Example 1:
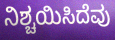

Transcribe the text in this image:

ನಿಶ್ಚಯಿಸಿದೆವು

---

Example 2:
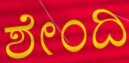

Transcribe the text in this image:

ಶೇಂದಿ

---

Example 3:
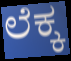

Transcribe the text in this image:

ಲೆಕ್ಕ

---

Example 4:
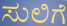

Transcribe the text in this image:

ಸುಲಿಗೆ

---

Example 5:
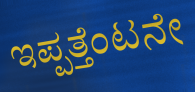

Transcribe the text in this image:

ಇಪ್ಪತ್ತೆಂಟನೇ